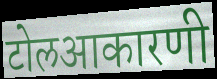
टोलआकारणी